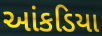
આંકડિયા